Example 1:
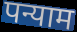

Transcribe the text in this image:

पन्याम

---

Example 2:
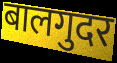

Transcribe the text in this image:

बालगुदर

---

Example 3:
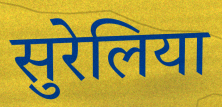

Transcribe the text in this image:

सुरेलिया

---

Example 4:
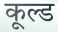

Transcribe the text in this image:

कूल्ड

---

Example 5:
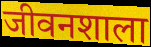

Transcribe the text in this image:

जीवनशाला